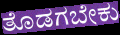
ತೊಡಗಬೇಕು